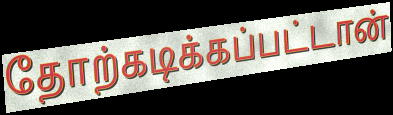
தோற்கடிக்கப்பட்டான்